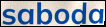
saboda